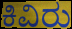
ಕಿವಿರು